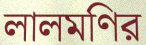
লালমণির